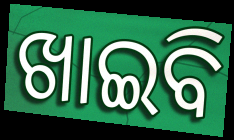
ଖାଇବି